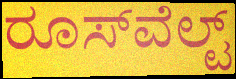
ರೂಸ್‍ವೆಲ್ಟ್